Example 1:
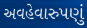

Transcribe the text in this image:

અવહેવારુપણું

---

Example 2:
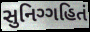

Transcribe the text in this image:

સુનિગ્ગહિતં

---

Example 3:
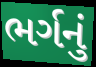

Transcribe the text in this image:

ભર્ગનું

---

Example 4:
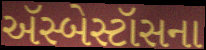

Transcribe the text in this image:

ઍસ્બેસ્ટૉસના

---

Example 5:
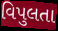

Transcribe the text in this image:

વિપુલતા